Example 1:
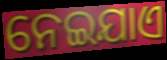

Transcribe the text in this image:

ନେଇଯାଏ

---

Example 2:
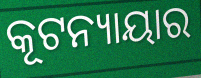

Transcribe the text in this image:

କୂଟନ୍ୟାୟାର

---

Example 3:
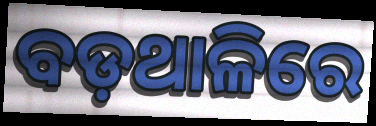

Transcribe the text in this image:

ବଡ଼ଥାଳିରେ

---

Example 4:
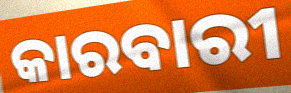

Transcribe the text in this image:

କାରବାରୀ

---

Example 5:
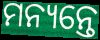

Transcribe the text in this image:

ମନ୍ୟନ୍ତେ